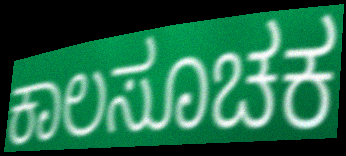
ಕಾಲಸೂಚಕ